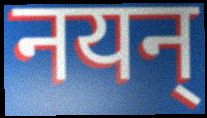
नयन्